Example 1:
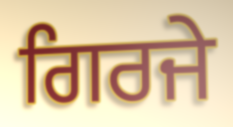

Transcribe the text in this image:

ਗਿਰਜੇ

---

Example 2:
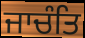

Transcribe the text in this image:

ਜਾਚੰਤਿ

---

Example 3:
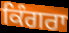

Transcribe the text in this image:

ਕਿੰਗਰਾ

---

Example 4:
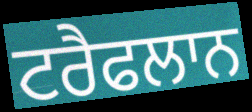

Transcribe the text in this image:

ਟਰੈਫਲਾਨ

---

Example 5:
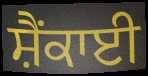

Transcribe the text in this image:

ਸ਼ੈਂਕਾਈ